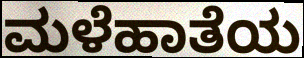
ಮಳೆಹಾತೆಯ